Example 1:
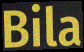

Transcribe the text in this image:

Bila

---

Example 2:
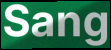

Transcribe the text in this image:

Sang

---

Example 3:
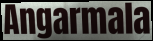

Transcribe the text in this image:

Angarmala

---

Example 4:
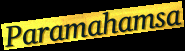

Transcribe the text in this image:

Paramahamsa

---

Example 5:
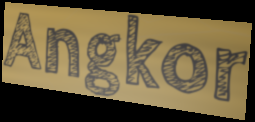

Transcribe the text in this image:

Angkor